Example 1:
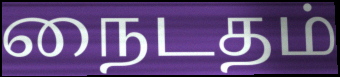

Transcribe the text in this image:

நைடதம்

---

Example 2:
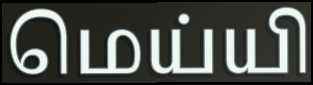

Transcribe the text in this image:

மெய்யி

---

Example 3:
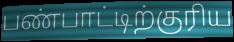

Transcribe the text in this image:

பண்பாட்டிற்குரிய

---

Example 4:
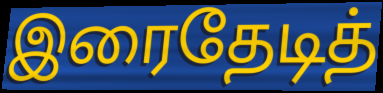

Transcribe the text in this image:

இரைதேடித்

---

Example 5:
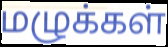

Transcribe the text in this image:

மழுக்கள்